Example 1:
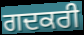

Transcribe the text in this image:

ਗਦਕਰੀ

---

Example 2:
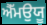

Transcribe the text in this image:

ਐੱਮਉਯੂ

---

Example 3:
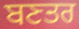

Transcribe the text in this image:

ਬਣਤਰ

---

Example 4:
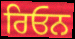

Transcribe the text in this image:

ਰਿਓਨ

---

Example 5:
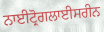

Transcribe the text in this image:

ਨਾਈਟ੍ਰੋਗਲਾਈਸਰੀਨ